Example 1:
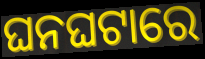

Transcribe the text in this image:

ଘନଘଟାରେ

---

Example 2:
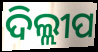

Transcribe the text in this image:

ଦିଲ୍ଲୀପ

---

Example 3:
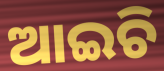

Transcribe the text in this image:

ଆଇଚି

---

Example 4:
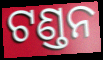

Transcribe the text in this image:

ଟଣ୍ଡନ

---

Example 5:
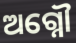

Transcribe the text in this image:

ଅଗ୍ନୌ